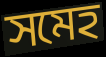
সমেহ